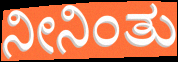
ನೀನಿಂತು